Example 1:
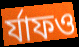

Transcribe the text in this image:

র্যাফও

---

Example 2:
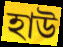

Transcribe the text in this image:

হাউ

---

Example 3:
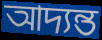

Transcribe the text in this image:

আদ্যন্ত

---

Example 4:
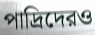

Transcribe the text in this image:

পাদ্রিদেরও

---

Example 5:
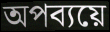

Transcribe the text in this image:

অপব্যয়ে